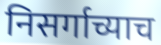
निसर्गाच्याच